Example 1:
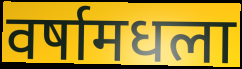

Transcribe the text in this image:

वर्षामधला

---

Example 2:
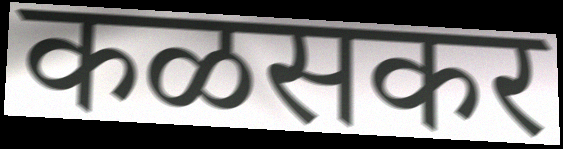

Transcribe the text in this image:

कळसकर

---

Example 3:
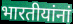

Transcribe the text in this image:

भारतीयांनां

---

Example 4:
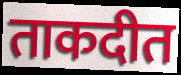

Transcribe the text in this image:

ताकदीत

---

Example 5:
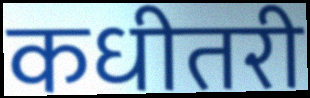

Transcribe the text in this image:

कधीतरी